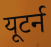
यूटर्न